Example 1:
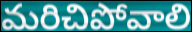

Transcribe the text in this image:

మరిచిపోవాలి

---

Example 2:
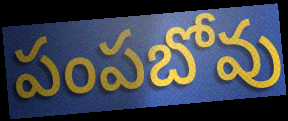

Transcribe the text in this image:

పంపబోవు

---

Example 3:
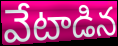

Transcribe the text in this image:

వేటాడిన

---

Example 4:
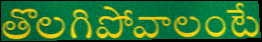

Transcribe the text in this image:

తొలగిపోవాలంటే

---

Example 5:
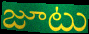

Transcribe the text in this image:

జూటు